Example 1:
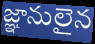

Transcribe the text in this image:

జ్ఞానులైన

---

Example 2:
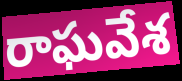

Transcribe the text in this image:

రాఘవేశ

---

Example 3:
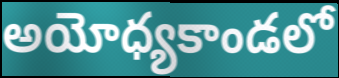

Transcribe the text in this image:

అయోధ్యకాండలో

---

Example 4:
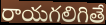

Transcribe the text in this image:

రాయగలిగితే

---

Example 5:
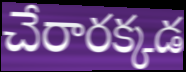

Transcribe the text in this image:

చేరారక్కడ